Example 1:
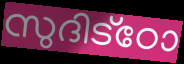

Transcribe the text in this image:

സുദിട്ഠോ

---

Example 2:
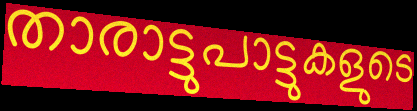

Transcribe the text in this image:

താരാട്ടുപാട്ടുകളുടെ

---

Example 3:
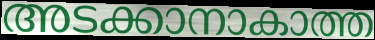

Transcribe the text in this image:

അടക്കാനാകാത്ത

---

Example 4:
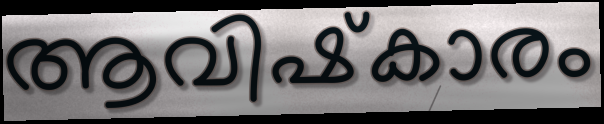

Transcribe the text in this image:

ആവിഷ്‌കാരം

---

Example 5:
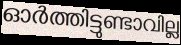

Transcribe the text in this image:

ഓർത്തിട്ടുണ്ടാവില്ല